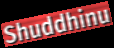
Shuddhinu